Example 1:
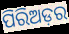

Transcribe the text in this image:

ପିରିଅଡ଼ର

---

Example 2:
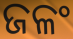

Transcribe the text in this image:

ଜଳଂ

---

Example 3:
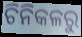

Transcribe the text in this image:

ଚିନିକଳରୁ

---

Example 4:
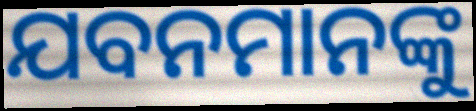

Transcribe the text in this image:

ଯବନମାନଙ୍କୁ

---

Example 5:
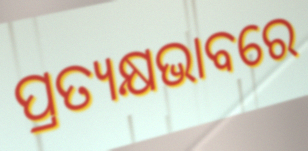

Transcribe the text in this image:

ପ୍ରତ୍ୟକ୍ଷଭାବରେ